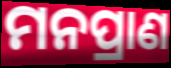
ମନପ୍ରାଣ